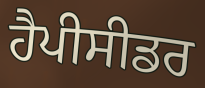
ਹੈਪੀਸੀਡਰ